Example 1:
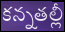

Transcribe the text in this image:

కన్నతల్లీ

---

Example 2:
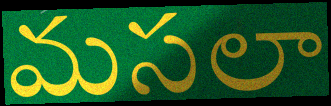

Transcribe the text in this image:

మసలా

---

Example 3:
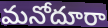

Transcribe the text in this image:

మనోదూరా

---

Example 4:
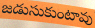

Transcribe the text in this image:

జడుసుకుంటావు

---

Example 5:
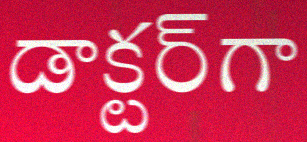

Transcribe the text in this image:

డాక్టర్‌గా